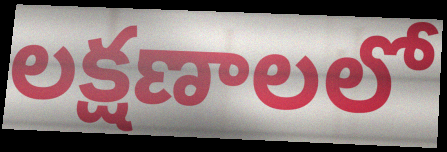
లక్షణాలలో